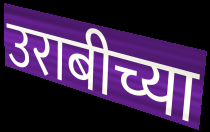
उराबीच्या